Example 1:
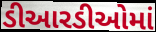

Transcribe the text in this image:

ડીઆરડીઓમાં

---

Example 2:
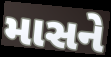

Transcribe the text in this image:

માસને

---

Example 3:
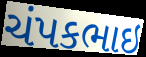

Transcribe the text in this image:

ચંપકભાઇ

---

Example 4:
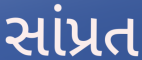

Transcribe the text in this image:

સાંપ્રત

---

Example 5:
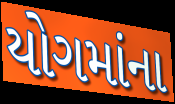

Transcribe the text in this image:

યોગમાંના